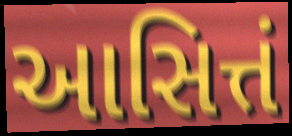
આસિત્તં